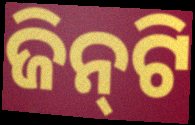
ଜିନ୍‌ଟି